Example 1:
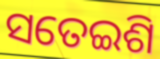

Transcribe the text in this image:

ସତେଇଶି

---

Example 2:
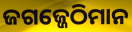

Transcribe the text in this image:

ଜଗଜ୍ଜେଠିମାନ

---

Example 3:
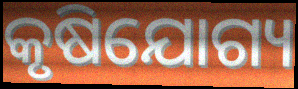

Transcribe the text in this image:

କୃଷିଯୋଗ୍ୟ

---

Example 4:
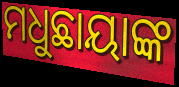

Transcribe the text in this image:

ମଧୁଛାୟାଙ୍କ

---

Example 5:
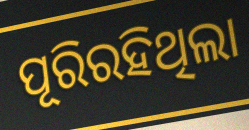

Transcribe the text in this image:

ପୂରିରହିଥିଲା